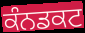
ਕੰਨਡਕਟ